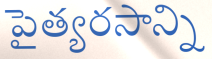
పైత్యరసాన్ని